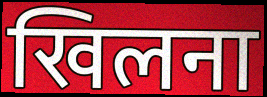
खिलना